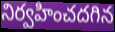
నిర్వహించదగిన